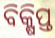
ବିକ୍ଷିପ୍ତ